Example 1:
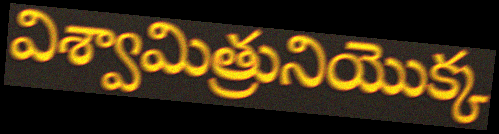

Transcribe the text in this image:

విశ్వామిత్రునియొక్క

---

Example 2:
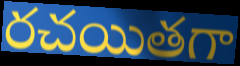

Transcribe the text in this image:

రచయితగా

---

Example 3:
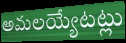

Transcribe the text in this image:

అమలయ్యేటట్లు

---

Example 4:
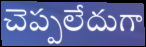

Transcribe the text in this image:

చెప్పలేదుగా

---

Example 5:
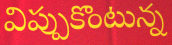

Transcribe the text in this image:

విప్పుకొంటున్న